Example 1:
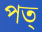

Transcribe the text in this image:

পত্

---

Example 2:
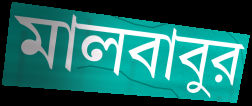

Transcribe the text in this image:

মালবাবুর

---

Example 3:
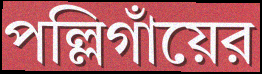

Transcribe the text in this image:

পল্লিগাঁয়ের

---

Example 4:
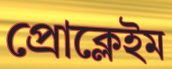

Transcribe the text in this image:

প্রোক্লেইম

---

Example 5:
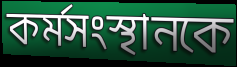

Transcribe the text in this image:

কর্মসংস্থানকে